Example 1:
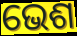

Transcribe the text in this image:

ଭେଶ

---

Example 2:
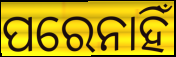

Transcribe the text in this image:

ପରେନାହିଁ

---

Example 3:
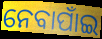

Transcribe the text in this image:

ନେବାପାଁଇ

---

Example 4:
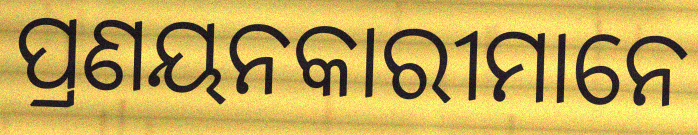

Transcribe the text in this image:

ପ୍ରଣୟନକାରୀମାନେ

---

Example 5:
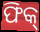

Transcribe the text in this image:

ଫିକ୍